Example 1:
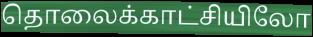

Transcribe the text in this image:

தொலைக்காட்சியிலோ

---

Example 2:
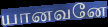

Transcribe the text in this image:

யானவனே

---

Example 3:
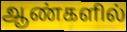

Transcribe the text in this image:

ஆண்களில்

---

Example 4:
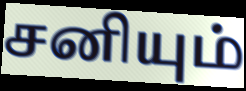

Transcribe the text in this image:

சனியும்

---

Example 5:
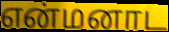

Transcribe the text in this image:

என்மனாட